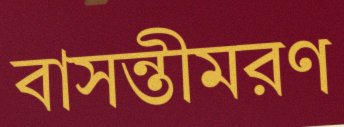
বাসন্তীমরণ